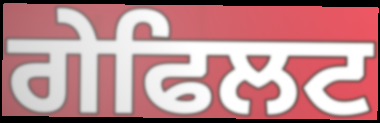
ਗੇਫਿਲਟ